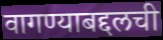
वागण्याबद्दलची